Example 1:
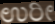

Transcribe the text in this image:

ಉರೀ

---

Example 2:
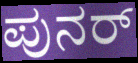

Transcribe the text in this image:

ಪುನರ್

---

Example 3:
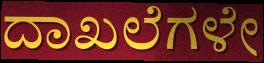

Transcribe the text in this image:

ದಾಖಲೆಗಳೇ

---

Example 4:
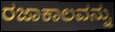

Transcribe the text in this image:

ರಜಾಕಾಲವನ್ನು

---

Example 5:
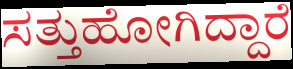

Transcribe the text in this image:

ಸತ್ತುಹೋಗಿದ್ದಾರೆ